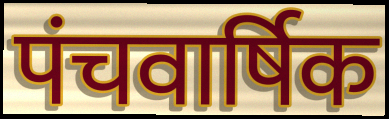
पंचवार्षिक